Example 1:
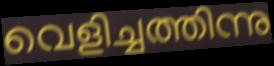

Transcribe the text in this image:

വെളിച്ചത്തിന്നു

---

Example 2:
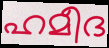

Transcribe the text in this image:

ഹമീദ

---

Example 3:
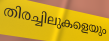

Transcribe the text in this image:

തിരച്ചിലുകളെയും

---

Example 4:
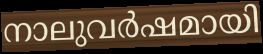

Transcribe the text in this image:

നാലുവർഷമായി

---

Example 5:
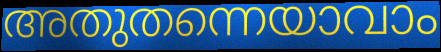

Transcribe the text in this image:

അതുതന്നെയാവാം